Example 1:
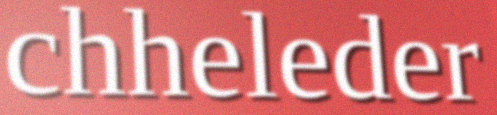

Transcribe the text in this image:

chheleder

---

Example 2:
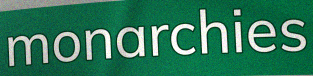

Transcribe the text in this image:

monarchies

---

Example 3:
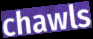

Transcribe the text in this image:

chawls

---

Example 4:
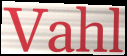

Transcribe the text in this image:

Vahl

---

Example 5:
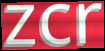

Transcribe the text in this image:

zcr